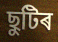
ছুটিৰ